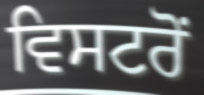
ਵਿਸਟਰੋਂ